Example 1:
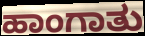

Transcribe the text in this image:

ಹಾಂಗಾತು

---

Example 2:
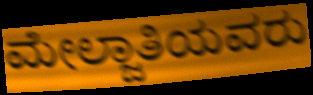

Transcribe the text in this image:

ಮೇಲ್ಜಾತಿಯವರು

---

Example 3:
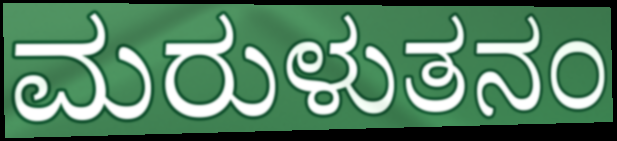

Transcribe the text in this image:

ಮರುಳುತನಂ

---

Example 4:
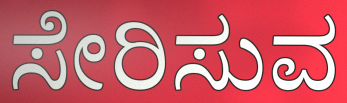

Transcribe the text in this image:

ಸೇರಿಸುವ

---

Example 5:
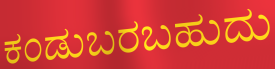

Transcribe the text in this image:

ಕಂಡುಬರಬಹುದು